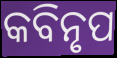
କବିନୃପ